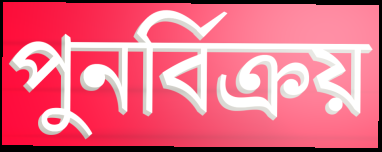
পুনর্বিক্রয়